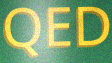
QED